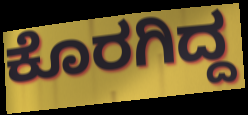
ಕೊರಗಿದ್ದ